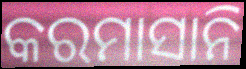
କରମାସାନି